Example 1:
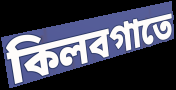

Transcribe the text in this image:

কিলবগাতে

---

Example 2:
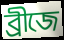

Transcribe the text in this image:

ব্রীজে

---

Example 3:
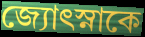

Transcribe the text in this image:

জ্যোৎস্নাকে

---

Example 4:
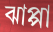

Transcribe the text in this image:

ঝাপ্পা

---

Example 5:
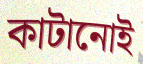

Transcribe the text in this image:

কাটানোই